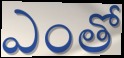
ఎంతో